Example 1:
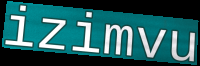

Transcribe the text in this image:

izimvu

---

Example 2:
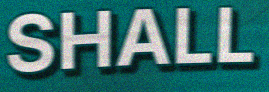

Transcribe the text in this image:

SHALL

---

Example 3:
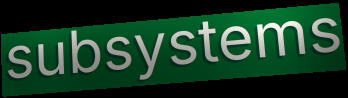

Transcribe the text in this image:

subsystems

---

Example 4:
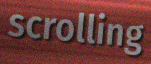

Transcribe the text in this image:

scrolling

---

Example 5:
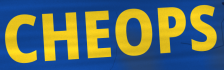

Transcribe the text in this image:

CHEOPS